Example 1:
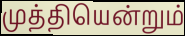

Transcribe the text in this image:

முத்தியென்றும்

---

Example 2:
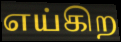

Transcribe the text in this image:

எய்கிற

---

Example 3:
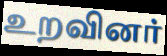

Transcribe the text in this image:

உறவினர்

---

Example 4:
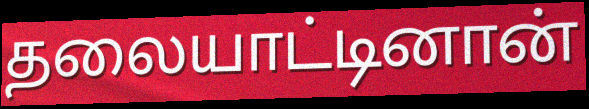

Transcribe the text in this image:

தலையாட்டினான்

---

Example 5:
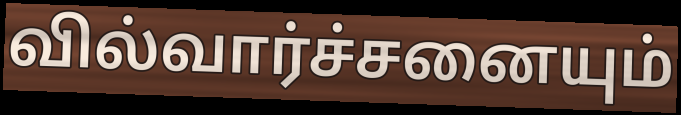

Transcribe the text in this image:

வில்வார்ச்சனையும்